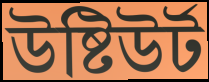
উষ্টিউৰ্ট